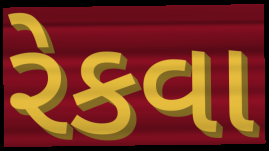
રેકવા